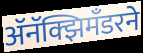
ॲनॅक्झिमँडरने